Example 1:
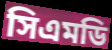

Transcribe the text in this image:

সিএমডি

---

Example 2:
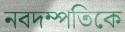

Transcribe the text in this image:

নবদম্পতিকে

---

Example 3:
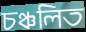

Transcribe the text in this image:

চঞ্চলিত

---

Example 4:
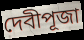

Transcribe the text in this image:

দেবীপূজা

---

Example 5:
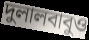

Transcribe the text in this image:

দুলালবাবুও